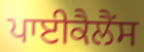
ਪਾਈਕੈਲੈਂਸ